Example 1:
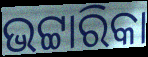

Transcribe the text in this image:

ଭଟ୍ଟାରିକା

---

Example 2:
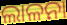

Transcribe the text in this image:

ଲାଳନା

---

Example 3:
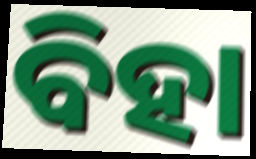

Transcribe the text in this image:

ବିହା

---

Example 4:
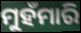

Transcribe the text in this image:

ମୁହଁମାରି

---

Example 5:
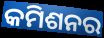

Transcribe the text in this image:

କମିଶନର